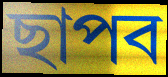
ছাপব